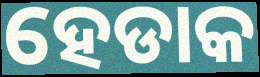
ହେଡାକ